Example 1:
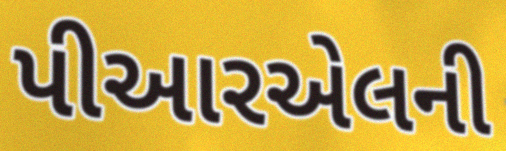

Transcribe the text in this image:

પીઆરએલની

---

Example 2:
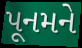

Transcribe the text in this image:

પૂનમને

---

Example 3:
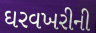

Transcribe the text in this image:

ઘરવખરીની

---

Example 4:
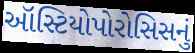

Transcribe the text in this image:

ઑસ્ટિયોપોરોસિસનું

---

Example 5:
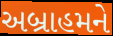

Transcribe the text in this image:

અબ્રાહમને